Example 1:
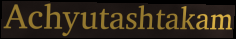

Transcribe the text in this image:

Achyutashtakam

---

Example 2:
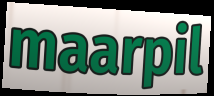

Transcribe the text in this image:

maarpil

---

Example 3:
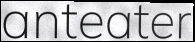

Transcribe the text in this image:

anteater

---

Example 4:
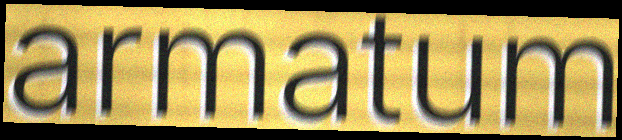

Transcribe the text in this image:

armatum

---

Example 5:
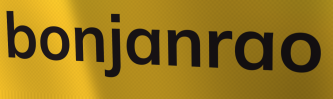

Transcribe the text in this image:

bonjanrao